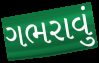
ગભરાવું